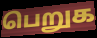
பெறுக